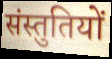
संस्तुतियों